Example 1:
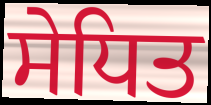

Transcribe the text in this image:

ਸੇਧਿਤ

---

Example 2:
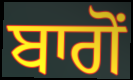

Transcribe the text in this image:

ਬਾਗੋਂ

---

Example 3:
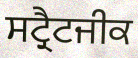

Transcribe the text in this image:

ਸਟ੍ਰੈਟਜੀਕ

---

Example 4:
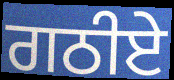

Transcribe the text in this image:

ਗਠੀਏ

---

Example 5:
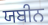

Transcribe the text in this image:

ਯਬੀਨ